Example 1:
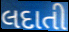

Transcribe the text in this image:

લદાતી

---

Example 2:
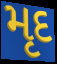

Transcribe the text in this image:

મૃદ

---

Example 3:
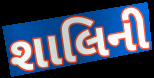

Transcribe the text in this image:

શાલિની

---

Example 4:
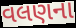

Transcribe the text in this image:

વલણના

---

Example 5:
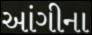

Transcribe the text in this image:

આંગીના